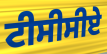
ਟੀਸੀਸੀਏ